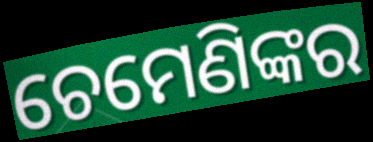
ଚେମେଣିଙ୍କର